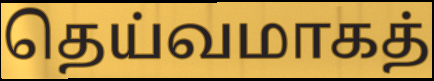
தெய்வமாகத்